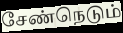
சேண்நெடும்